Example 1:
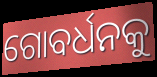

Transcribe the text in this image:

ଗୋବର୍ଧନକୁ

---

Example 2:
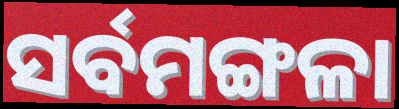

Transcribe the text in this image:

ସର୍ବମଙ୍ଗଳା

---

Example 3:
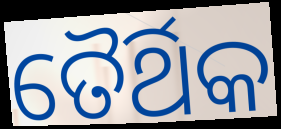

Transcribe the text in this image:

ତୈର୍ଥିକ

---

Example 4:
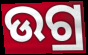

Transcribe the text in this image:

ଉଗ୍ର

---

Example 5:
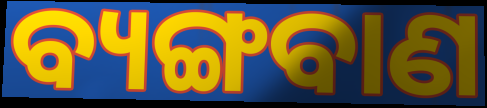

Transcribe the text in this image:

ବ୍ୟଙ୍ଗବାଣ